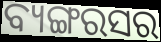
ବ୍ୟଙ୍ଗରସର